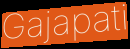
Gajapati